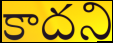
కాదని